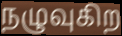
நழுவுகிற